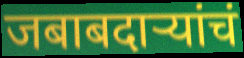
जबाबदार्‍यांचं